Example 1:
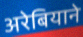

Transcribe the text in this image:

अरेबियाने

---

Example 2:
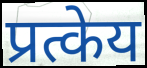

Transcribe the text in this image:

प्रत्केय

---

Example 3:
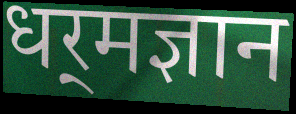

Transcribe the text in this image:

धर्मज्ञान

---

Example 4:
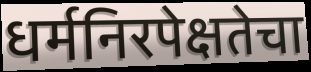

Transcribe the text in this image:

धर्मनिरपेक्षतेचा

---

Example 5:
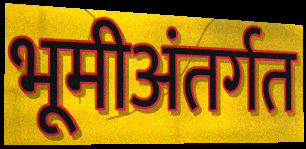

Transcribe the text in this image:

भूमीअंतर्गत